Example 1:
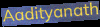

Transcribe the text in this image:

Aadityanath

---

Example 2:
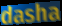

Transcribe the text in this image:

dasha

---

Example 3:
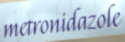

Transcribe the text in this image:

metronidazole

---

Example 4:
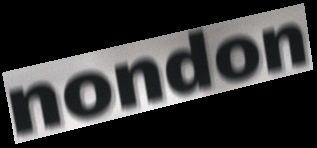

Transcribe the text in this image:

nondon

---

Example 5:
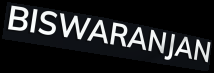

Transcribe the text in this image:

BISWARANJAN